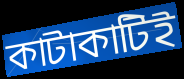
কাটাকাটিই